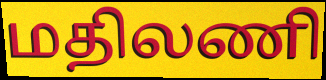
மதிலணி